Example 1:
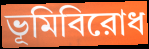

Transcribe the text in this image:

ভূমিবিরোধ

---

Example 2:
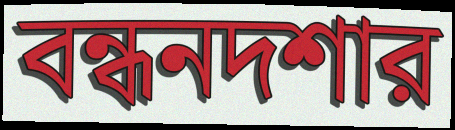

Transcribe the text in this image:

বন্ধনদশার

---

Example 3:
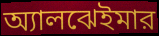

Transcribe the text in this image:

অ্যালঝেইমার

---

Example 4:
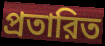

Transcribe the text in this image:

প্রতারিত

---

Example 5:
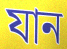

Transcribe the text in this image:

যান